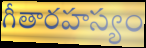
గీతారహస్యం